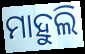
ମାହୁଲି